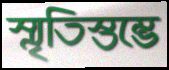
স্মৃতিস্তম্ভে